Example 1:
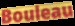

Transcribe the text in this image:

Bouleau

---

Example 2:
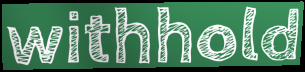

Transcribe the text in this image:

withhold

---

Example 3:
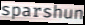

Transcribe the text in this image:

sparshun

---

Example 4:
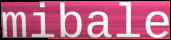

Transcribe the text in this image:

mibale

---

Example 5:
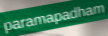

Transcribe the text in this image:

paramapadham